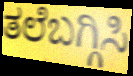
ತಲೆಬಗ್ಗಿಸಿ